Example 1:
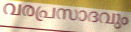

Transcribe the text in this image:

വരപ്രസാദവും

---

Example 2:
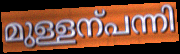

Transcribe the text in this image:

മുള്ളന്പന്നി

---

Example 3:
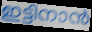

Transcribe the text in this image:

ഇട്ടിനാൻ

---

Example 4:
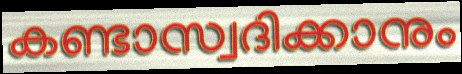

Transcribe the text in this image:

കണ്ടാസ്വദിക്കാനും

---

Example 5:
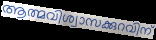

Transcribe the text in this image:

ആത്മവിശ്വാസക്കുറവിന്